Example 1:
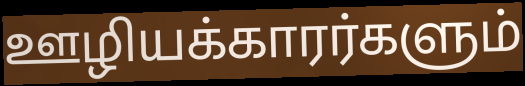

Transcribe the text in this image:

ஊழியக்காரர்களும்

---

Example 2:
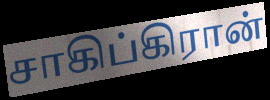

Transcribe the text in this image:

சாகிப்கிரான்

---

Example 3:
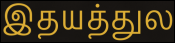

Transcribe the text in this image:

இதயத்துல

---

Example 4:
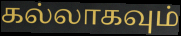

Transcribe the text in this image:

கல்லாகவும்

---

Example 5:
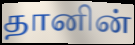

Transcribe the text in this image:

தானின்